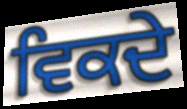
ਵਿਕਦੇ